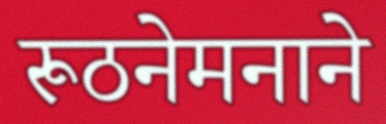
रूठनेमनाने